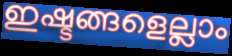
ഇഷ്ടങ്ങളെല്ലാം